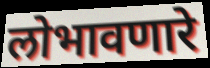
लोभावणारे